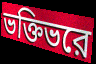
ভক্তিভরে